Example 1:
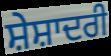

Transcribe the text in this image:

ਸ਼ੇਸ਼ਾਦਰੀ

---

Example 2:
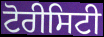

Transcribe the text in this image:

ਟੋਰੀਸਿਟੀ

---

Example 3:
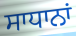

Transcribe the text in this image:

ਸਾਧਾਨਾਂ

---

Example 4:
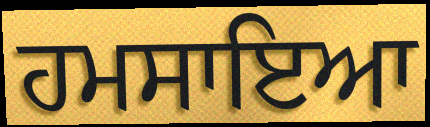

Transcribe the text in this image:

ਹਮਸਾਇਆ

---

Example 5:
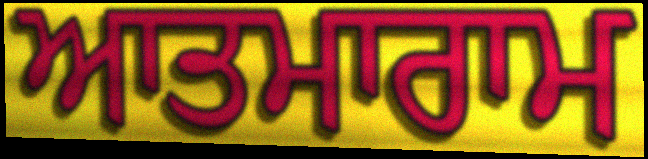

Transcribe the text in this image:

ਆਤਮਾਰਾਮ